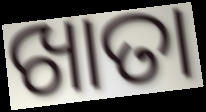
ଖାତା